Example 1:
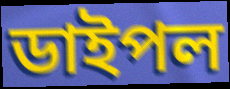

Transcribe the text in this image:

ডাইপল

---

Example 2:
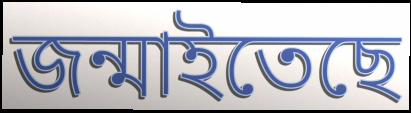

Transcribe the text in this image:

জন্মাইতেছে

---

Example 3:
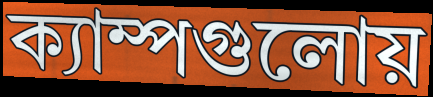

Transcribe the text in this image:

ক্যাম্পগুলোয়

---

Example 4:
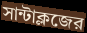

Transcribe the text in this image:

সান্টাক্লজের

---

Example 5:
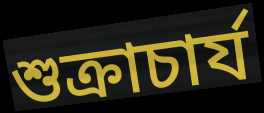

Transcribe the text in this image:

শুক্রাচার্য